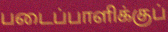
படைப்பாளிக்குப்